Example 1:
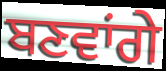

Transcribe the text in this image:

ਬਣਵਾਂਗੇ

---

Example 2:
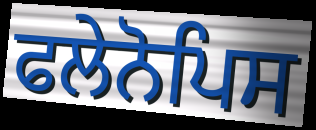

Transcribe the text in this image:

ਫਲੇਨੋਪਿਸ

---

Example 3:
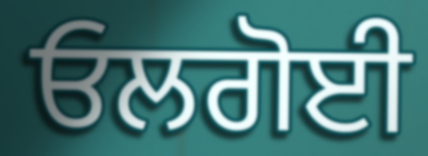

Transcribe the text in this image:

ਓਲਗੋਈ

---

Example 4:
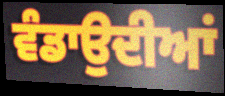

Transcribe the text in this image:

ਵੰਡਾਉਦੀਆਂ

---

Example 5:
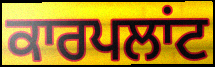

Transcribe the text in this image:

ਕਾਰਪਲਾਂਟ